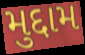
મુદ્દામ